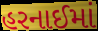
હરનાઈમાં